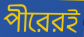
পীরেরই